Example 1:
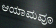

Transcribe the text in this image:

ಆಯಾಮವೂ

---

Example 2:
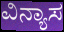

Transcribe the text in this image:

ವಿನ್ಯಾಸ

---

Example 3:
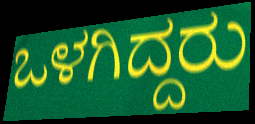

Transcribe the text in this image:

ಒಳಗಿದ್ದರು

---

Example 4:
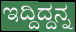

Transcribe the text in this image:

ಇದ್ದಿದ್ದನ್ನ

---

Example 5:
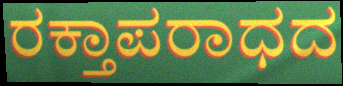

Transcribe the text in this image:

ರಕ್ತಾಪರಾಧದ